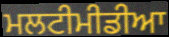
ਮਲਟੀਮੀਡੀਆ